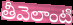
తీవెలాంటి